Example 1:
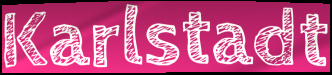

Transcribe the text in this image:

Karlstadt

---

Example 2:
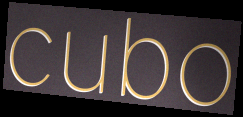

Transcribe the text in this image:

cubo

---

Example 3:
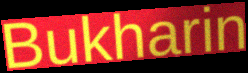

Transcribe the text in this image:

Bukharin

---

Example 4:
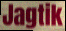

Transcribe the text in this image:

Jagtik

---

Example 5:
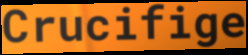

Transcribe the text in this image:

Crucifige